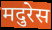
मदुरेस